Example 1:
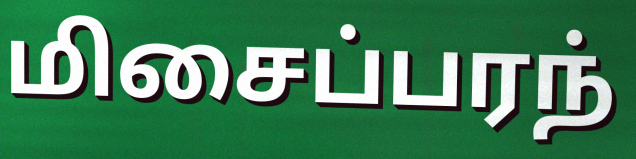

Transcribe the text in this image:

மிசைப்பரந்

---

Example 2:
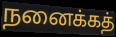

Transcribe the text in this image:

நனைக்கத்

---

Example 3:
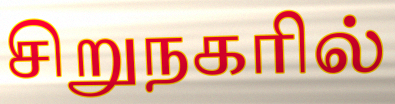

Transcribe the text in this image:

சிறுநகரில்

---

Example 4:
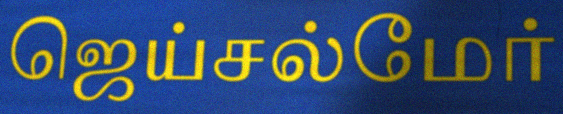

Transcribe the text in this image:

ஜெய்சல்மேர்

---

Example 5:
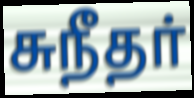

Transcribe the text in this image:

சுநீதர்